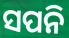
ସପନି